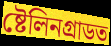
ষ্টেলিনগ্ৰাডত